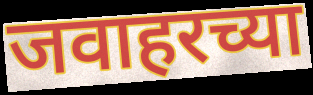
जवाहरच्या